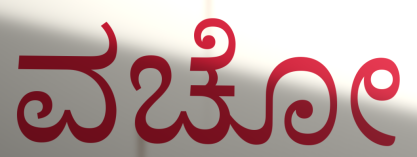
ವಚೋ